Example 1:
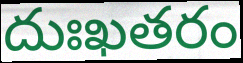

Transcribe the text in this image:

దుఃఖతరం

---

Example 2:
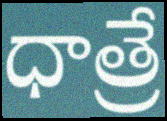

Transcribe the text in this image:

ధాత్రే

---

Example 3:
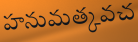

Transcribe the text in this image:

హనుమత్కవచ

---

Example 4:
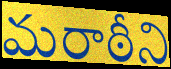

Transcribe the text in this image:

మరాఠీని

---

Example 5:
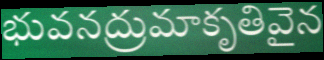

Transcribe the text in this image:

భువనద్రుమాకృతివైన